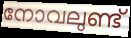
നോവലുണ്ട്